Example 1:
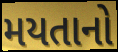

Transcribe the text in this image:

મયતાનો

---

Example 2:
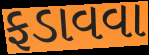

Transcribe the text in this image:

ફડાવવા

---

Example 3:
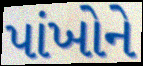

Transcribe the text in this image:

પાંખોને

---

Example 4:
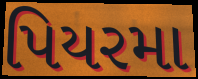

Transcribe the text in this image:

પિયરમા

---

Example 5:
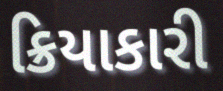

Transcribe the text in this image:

ક્રિયાકારી